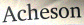
Acheson